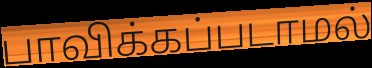
பாவிக்கப்படாமல்